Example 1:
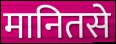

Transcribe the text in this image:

मानितसे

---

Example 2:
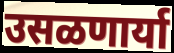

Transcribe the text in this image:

उसळणार्या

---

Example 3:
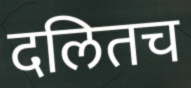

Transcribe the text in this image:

दलितच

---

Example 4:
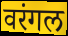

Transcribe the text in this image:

वरंगल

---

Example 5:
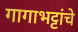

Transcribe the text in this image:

गागाभट्टांचे